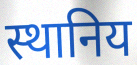
स्थानिय